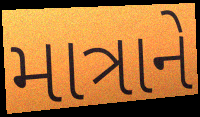
માત્રાને